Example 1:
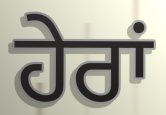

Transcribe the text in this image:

ਹੇਰਾਂ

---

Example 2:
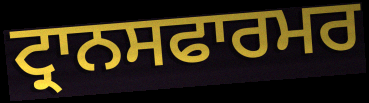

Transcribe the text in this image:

ਟ੍ਰਾਨਸਫਾਰਮਰ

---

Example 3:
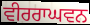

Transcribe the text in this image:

ਵੀਰਰਾਘਵਨ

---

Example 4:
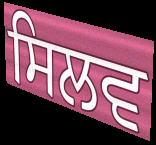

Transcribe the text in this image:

ਸਿਲਵ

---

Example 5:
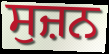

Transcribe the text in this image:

ਸੁਜ਼ਨ